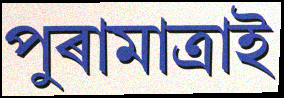
পুৰামাত্ৰাই